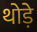
थोड़े